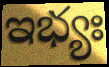
ఇభ్యః